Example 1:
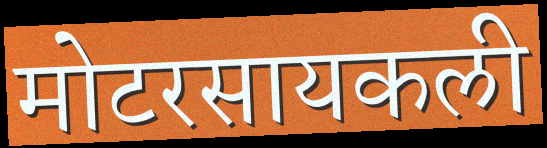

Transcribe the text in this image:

मोटरसायकली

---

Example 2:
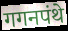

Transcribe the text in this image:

गगनपंथे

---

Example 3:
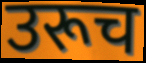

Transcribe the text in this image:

उरूच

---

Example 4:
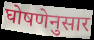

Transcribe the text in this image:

घोषणेनुसार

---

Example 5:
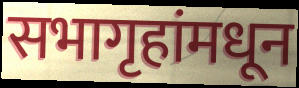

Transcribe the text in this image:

सभागृहांमधून